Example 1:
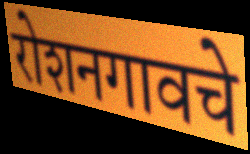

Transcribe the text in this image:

रोशनगावचे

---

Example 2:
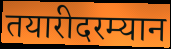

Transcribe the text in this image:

तयारीदरम्यान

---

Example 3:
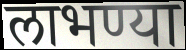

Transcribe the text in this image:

लाभण्या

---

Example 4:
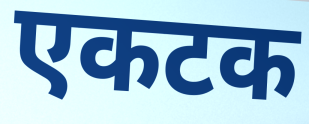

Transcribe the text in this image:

एकटक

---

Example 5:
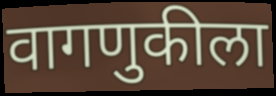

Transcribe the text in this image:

वागणुकीला